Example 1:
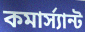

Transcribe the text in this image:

কমার্স্যান্ট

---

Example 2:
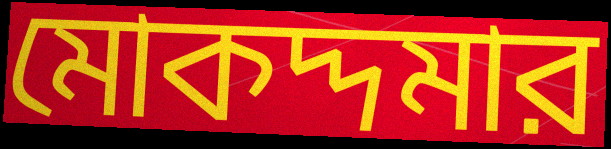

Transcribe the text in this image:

মোকদ্দমার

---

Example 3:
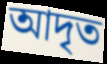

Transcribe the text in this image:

আদৃত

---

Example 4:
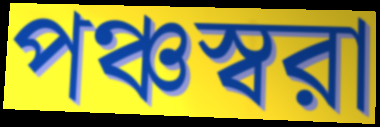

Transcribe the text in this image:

পঞ্চস্বরা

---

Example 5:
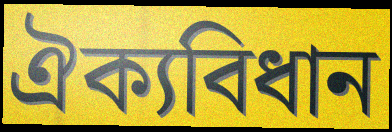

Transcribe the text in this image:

ঐক্যবিধান